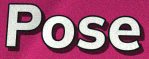
Pose